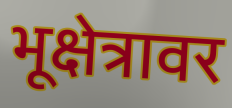
भूक्षेत्रावर